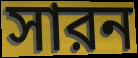
সারন